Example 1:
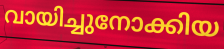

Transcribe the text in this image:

വായിച്ചുനോക്കിയ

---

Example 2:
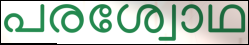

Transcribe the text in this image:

പരശ്വോഥ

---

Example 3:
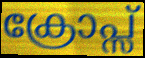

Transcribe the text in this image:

ക്രോപ്സ്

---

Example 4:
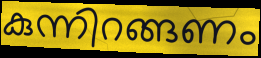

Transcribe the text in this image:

കുന്നിറങ്ങണം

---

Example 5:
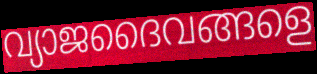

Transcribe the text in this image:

വ്യാജദൈവങ്ങളെ